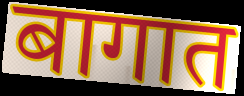
बागात